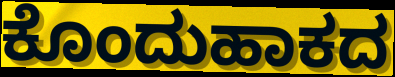
ಕೊಂದುಹಾಕದ